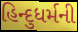
હિન્દુધર્મની